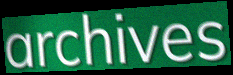
archives